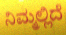
ನಿಮ್ಮಲ್ಲಿದೆ